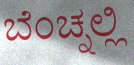
ಬೆಂಚ್ನಲ್ಲಿ